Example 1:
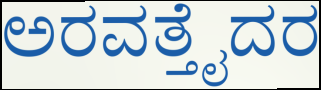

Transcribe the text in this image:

ಅರವತ್ತೈದರ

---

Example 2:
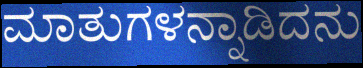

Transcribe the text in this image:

ಮಾತುಗಳನ್ನಾಡಿದನು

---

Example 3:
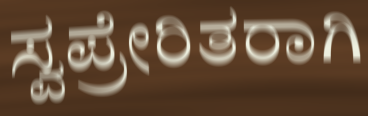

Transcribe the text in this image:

ಸ್ವಪ್ರೇರಿತರಾಗಿ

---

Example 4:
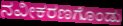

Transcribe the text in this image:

ನವೀಕರಣಗೊಂಡು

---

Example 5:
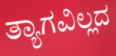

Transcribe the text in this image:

ತ್ಯಾಗವಿಲ್ಲದ